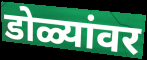
डोळ्यांवर